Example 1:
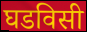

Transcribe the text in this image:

घडविसी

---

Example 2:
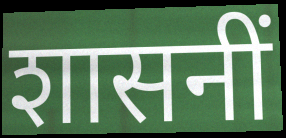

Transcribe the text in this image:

शासनीं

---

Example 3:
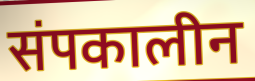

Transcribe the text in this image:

संपकालीन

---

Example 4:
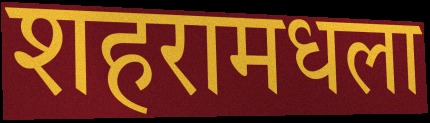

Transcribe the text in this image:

शहरामधला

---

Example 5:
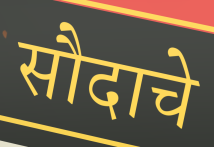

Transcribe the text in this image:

सौदाचे